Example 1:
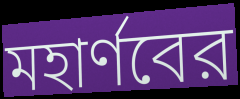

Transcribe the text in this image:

মহার্ণবের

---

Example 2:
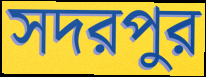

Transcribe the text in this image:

সদরপুর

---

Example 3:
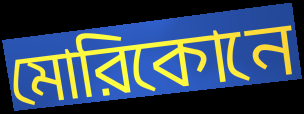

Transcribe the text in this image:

মোরিকোনে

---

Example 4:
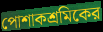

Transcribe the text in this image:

পোশাকশ্রমিকের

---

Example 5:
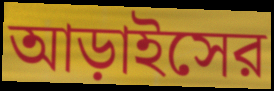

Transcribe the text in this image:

আড়াইসের